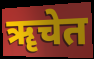
ॠचेत